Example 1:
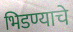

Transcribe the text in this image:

भिडण्याचे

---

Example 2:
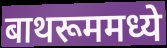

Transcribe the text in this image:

बाथरूममध्ये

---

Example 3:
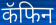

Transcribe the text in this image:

कॅफिन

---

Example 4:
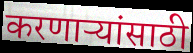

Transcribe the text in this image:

करणाऱ्यांसाठी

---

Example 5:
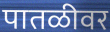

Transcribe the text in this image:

पातळीवर